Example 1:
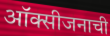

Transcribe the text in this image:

ऑक्सीजनाची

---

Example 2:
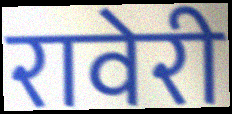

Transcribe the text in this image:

रावेरी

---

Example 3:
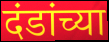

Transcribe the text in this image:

दंडांच्या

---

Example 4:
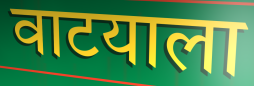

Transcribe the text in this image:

वाटयाला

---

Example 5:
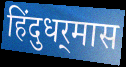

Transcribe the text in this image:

हिंदुधर्मास